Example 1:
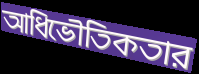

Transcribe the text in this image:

আধিভৌতিকতার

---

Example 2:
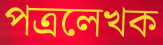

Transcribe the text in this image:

পত্রলেখক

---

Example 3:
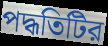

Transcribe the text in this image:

পদ্ধতিটির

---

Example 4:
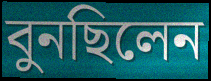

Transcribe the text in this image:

বুনছিলেন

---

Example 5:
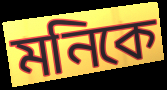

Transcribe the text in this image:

মনিকে